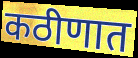
कठीणात